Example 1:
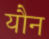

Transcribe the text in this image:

यौन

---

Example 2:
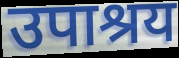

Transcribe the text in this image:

उपाश्रय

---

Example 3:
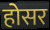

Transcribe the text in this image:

होसर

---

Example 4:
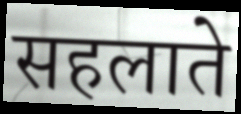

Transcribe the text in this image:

सहलाते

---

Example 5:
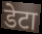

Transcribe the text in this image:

डेटा